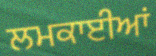
ਲਮਕਾਈਆਂ